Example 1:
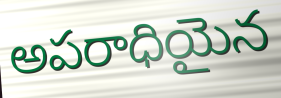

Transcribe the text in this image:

అపరాధియైన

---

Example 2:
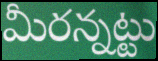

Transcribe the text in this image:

మీరన్నట్టు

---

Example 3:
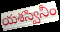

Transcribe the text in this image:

యశస్వినీం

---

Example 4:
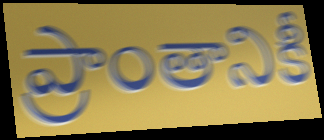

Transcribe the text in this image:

ప్రాంతానికీ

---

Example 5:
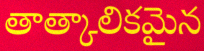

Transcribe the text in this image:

తాత్కాలికమైన